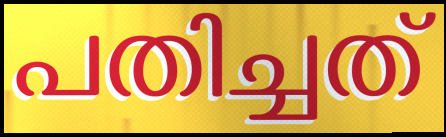
പതിച്ചത്